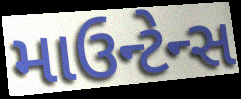
માઉન્ટેન્સ